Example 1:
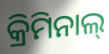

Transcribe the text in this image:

କ୍ରିମିନାଲ୍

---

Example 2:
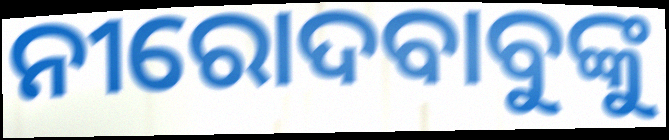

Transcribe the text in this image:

ନୀରୋଦବାବୁଙ୍କୁ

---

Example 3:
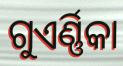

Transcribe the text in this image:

ଗୁଏର୍ଣ୍ଣିକା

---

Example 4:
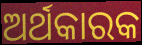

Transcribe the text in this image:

ଅର୍ଥକାରକ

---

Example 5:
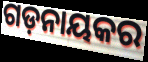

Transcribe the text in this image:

ଗଡ଼ନାୟକର